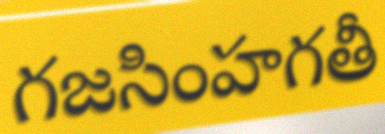
గజసింహగతీ